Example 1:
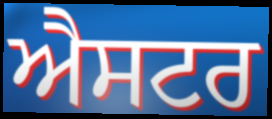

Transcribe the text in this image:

ਐਸਟਰ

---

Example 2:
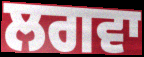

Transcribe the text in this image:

ਲਗਵਾ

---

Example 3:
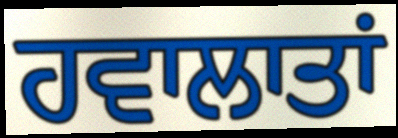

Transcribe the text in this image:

ਹਵਾਲਾਤਾਂ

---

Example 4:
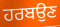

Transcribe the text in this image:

ਹਰਬਉਣ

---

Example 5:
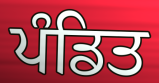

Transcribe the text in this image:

ਪੰਡਿਤ